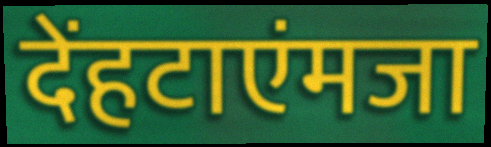
देंहटाएंमजा